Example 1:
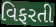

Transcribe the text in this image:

વિફરતી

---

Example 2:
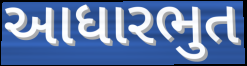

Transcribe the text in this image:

આધારભુત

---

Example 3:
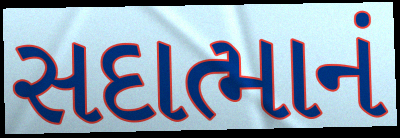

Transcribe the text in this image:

સદાત્માનં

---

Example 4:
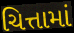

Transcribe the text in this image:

ચિત્તામાં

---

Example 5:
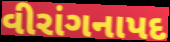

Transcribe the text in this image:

વીરાંગનાપદ